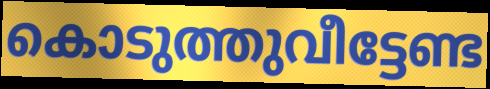
കൊടുത്തുവീട്ടേണ്ട